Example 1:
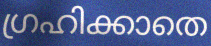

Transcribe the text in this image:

ഗ്രഹിക്കാതെ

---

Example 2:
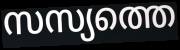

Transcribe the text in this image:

സസ്യത്തെ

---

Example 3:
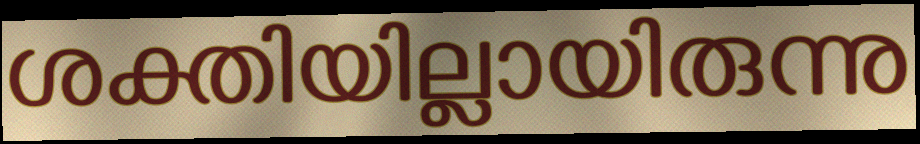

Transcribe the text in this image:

ശക്തിയില്ലായിരുന്നു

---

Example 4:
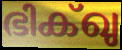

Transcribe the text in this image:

ഭിക്ഖു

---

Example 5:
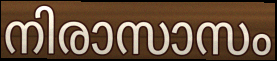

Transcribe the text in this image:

നിരാസാസം